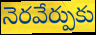
నెరవేర్పుకు